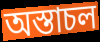
অস্তাচল